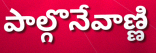
పాల్గొనేవాణ్ణి